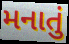
મનાતું